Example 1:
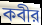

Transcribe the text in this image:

কবীর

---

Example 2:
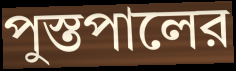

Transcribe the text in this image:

পুস্তপালের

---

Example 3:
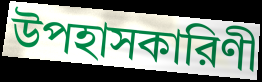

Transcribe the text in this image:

উপহাসকারিণী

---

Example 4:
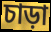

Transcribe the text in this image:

চাড়া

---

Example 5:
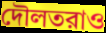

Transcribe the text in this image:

দৌলতরাও